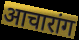
आचारांग